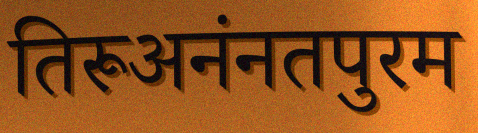
तिरूअनंनतपुरम